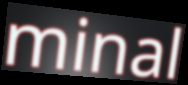
minal